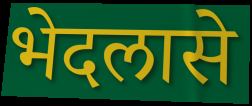
भेदलासे